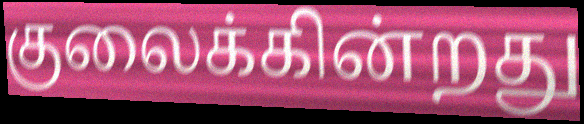
குலைக்கின்றது